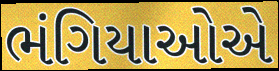
ભંગિયાઓએ